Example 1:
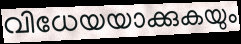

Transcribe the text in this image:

വിധേയയാക്കുകയും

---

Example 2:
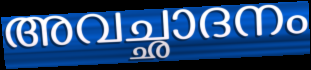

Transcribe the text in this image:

അവച്ഛാദനം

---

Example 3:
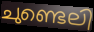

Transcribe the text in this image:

ചുണ്ടെലി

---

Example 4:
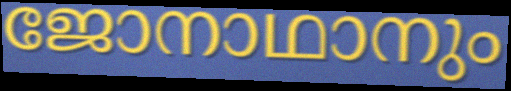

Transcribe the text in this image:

ജോനാഥാനും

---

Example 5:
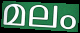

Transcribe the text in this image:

മലം